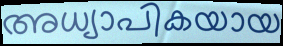
അധ്യാപികയായ